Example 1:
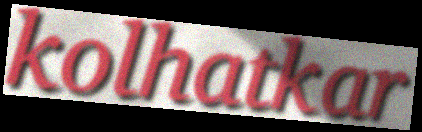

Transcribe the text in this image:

kolhatkar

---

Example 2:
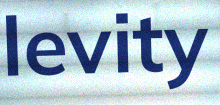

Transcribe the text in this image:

levity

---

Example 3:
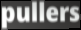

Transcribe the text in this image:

pullers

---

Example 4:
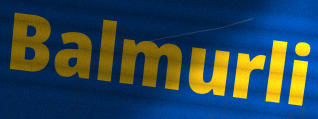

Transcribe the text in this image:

Balmurli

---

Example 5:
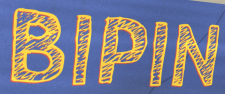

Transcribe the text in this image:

BIPIN